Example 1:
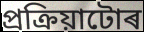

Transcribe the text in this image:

প্ৰক্ৰিয়াটোৰ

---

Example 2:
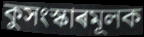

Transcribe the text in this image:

কুসংস্কাৰমূলক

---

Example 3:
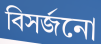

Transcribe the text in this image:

বিসৰ্জনো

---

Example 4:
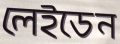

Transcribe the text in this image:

লেইডেন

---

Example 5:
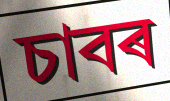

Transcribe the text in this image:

চাবৰ